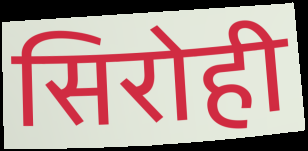
सिरोही